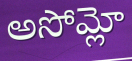
అసోమ్లో